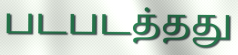
படபடத்தது